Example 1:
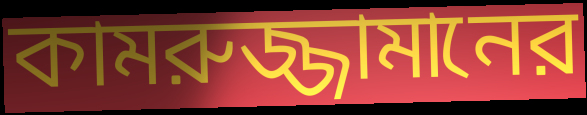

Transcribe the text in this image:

কামরুজ্জামানের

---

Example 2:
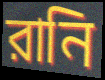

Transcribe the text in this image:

রানি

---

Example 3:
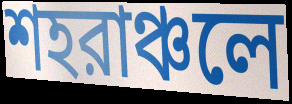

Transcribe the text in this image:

শহরাঞ্চলে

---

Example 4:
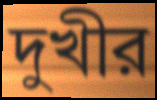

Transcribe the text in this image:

দুখীর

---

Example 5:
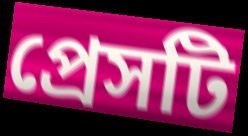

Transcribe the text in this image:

প্রেসটি